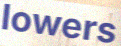
lowers